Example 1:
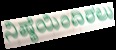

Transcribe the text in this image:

ನಿಷ್ಠೆಯಿಂದಿರಲು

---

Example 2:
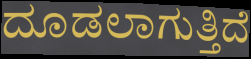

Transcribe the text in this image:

ದೂಡಲಾಗುತ್ತಿದೆ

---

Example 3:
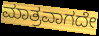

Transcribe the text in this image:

ಮಾತ್ರವಾಗದೇ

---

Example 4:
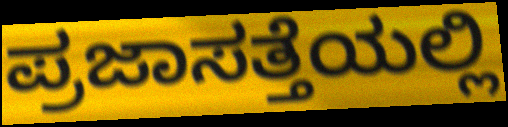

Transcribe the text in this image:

ಪ್ರಜಾಸತ್ತೆಯಲ್ಲಿ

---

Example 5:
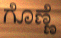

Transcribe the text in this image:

ಗೊಣ್ಣೆ